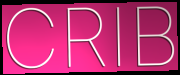
CRIB